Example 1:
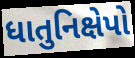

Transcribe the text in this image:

ધાતુનિક્ષેપો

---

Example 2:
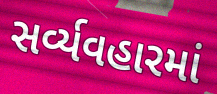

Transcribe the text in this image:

સર્વ્યવહારમાં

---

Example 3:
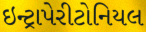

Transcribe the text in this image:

ઇન્ટ્રાપેરીટોનિયલ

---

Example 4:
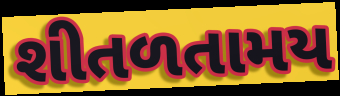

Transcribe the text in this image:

શીતળતામય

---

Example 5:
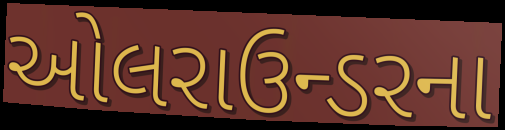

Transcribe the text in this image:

ઓલરાઉન્ડરના